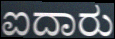
ಐದಾರು